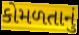
કોમળતાનું